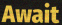
Await